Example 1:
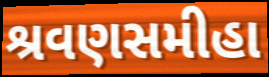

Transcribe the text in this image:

શ્રવણસમીહા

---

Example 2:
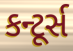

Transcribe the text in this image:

કન્ટૂર્સ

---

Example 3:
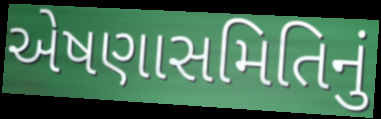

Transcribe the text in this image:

એષણાસમિતિનું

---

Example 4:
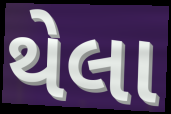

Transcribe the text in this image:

થેલા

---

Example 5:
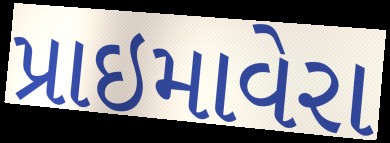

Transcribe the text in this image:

પ્રાઇમાવેરા